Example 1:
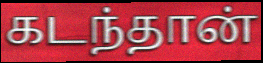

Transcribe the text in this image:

கடந்தான்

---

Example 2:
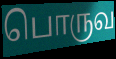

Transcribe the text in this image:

பொருவ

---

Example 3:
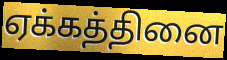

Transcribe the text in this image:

ஏக்கத்தினை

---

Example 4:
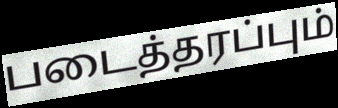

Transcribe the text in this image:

படைத்தரப்பும்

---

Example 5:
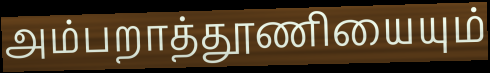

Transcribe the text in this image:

அம்பறாத்தூணியையும்